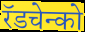
रॅडचेन्को